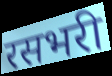
रसभरी